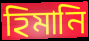
হিমানি